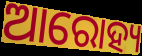
ଆରୋହ୍ୟ